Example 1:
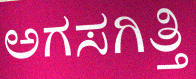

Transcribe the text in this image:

ಅಗಸಗಿತ್ತಿ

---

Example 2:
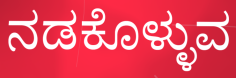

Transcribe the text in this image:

ನಡಕೊಳ್ಳುವ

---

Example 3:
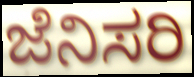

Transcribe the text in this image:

ಜೆನಿಸರಿ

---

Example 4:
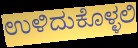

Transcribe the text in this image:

ಉಳಿದುಕೊಳ್ಳಲಿ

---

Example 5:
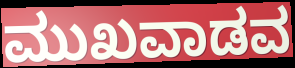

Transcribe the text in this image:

ಮುಖವಾಡವ